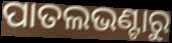
ପାତଲଭଣ୍ଟାରୁ